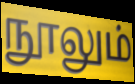
நூலும்